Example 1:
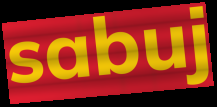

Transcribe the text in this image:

sabuj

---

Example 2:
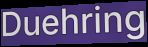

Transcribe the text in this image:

Duehring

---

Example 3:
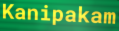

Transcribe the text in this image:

Kanipakam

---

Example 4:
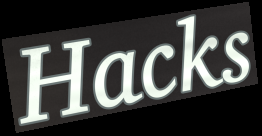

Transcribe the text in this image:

Hacks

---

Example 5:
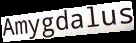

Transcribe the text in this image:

Amygdalus